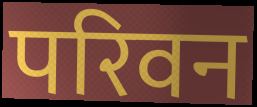
परिवन